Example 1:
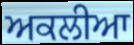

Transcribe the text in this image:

ਅਕਲੀਆ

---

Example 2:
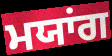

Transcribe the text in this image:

ਮਯਾਂਗ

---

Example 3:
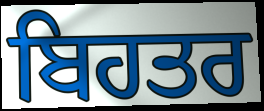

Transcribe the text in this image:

ਬਿਹਤਰ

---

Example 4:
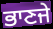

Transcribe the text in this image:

ਭਾਣਜੇ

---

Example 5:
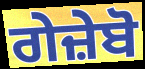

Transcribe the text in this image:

ਗੇਜ਼ੇਬੋ